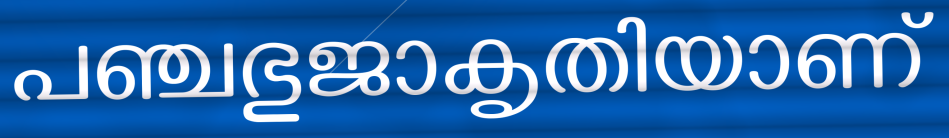
പഞ്ചഭുജാകൃതിയാണ്